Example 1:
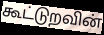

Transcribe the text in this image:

கூட்டுறவின்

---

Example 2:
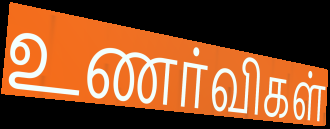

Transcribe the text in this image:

உணர்விகள்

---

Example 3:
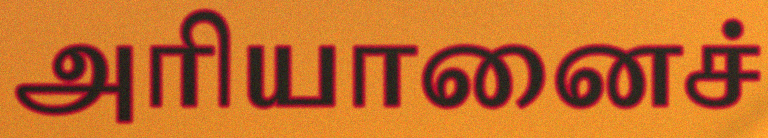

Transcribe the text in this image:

அரியானைச்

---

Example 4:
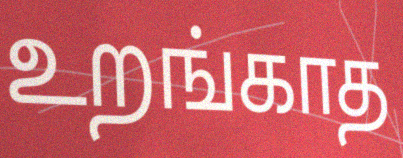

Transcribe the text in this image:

உறங்காத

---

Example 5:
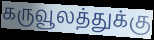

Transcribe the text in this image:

கருவூலத்துக்கு